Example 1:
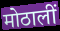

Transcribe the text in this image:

मोठालीं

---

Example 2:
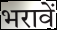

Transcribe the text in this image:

भरावें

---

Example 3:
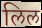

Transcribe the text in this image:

लिल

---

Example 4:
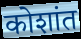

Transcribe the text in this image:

कोशांत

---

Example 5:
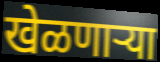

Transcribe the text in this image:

खेळणाऱ्या